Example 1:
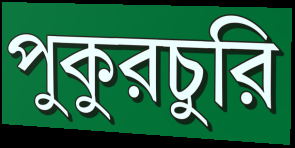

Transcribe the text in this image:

পুকুরচুরি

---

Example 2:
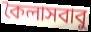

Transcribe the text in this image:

কৈলাসবাবু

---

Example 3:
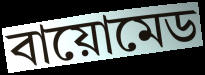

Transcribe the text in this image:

বায়োমেড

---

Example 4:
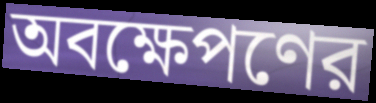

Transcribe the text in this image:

অবক্ষেপণের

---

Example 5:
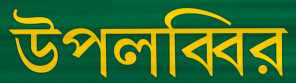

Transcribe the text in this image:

উপলব্বির